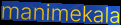
manimekala